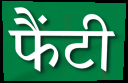
फैंटी